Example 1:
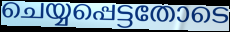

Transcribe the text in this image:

ചെയ്യപ്പെട്ടതോടെ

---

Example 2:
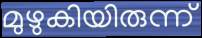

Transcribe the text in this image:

മുഴുകിയിരുന്ന്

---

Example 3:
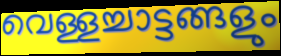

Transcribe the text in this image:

വെള്ളച്ചാട്ടങ്ങളും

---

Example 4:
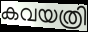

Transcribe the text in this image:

കവയത്രി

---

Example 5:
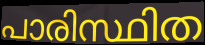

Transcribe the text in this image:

പാരിസ്ഥിത